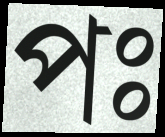
পঃ